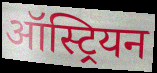
ऑस्ट्रियन